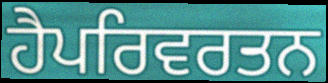
ਹੈਪਰਿਵਰਤਨ